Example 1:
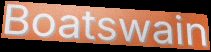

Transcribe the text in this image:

Boatswain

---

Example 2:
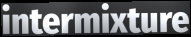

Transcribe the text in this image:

intermixture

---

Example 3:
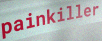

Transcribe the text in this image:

painkiller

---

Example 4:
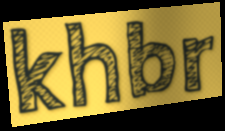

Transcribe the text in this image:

khbr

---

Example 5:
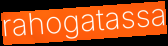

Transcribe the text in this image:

rahogatassa